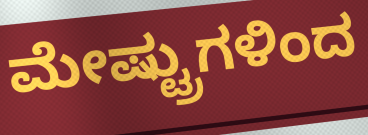
ಮೇಷ್ಟ್ರುಗಳಿಂದ